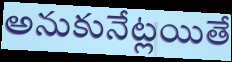
అనుకునేట్లయితే